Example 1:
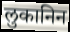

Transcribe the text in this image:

लुकानिन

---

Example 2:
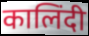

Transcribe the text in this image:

कालिंदी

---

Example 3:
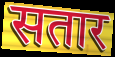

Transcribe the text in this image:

सतार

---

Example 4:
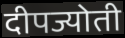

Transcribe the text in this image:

दीपज्योती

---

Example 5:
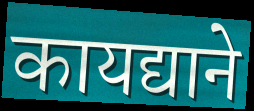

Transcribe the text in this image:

कायद्याने